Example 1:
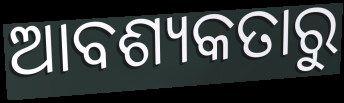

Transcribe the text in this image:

ଆବଶ୍ୟକତାରୁ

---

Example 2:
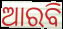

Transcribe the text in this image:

ଆରବି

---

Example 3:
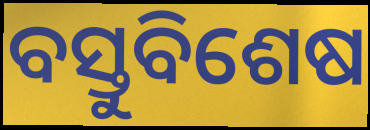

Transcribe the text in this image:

ବସ୍ତୁବିଶେଷ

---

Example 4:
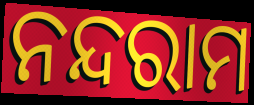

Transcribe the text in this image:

ନନ୍ଦରାମ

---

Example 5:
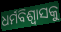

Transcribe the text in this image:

ଧର୍ମବିଶ୍ଵାସକୁ